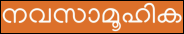
നവസാമൂഹിക